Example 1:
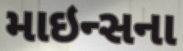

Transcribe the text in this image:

માઇન્સના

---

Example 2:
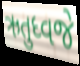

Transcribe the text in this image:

ઋતુધ્વજે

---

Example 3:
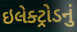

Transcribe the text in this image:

ઇલેક્ટ્રોડનું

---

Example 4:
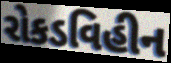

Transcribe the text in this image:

રોકડવિહીન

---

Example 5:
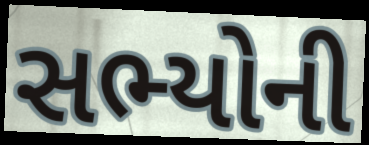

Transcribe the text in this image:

સભ્યોની